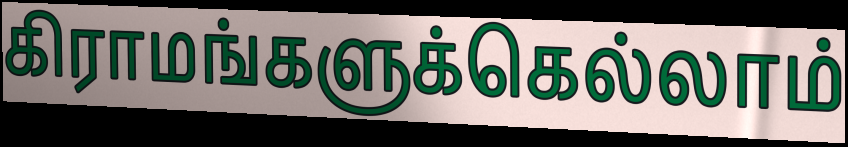
கிராமங்களுக்கெல்லாம்